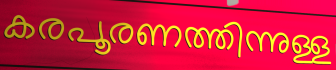
കരപൂരണത്തിന്നുള്ള